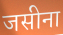
जसीना